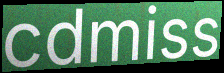
cdmiss